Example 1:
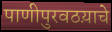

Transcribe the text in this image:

पाणीपुरवठय़ाचे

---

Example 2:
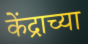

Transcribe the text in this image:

केंद्राच्या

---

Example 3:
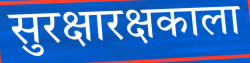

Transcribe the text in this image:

सुरक्षारक्षकाला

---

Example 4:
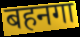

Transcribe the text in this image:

बहनगा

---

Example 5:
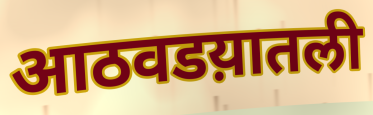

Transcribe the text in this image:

आठवडय़ातली